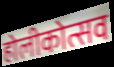
होलीकोत्सव